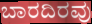
ಬಾರದಿರವು